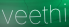
veethi